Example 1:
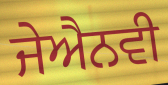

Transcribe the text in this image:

ਜੇਐਨਵੀ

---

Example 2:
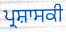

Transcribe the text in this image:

ਪ੍ਰਸ਼ਾਸਕੀ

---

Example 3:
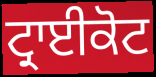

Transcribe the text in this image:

ਟ੍ਰਾਈਕੋਟ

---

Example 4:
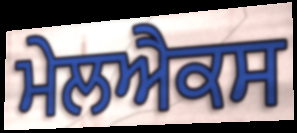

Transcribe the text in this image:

ਮੇਲਐਕਸ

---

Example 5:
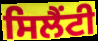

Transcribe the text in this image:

ਸਿਲੈਂਟੀ